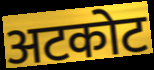
अटकोट